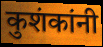
कुशंकांनी